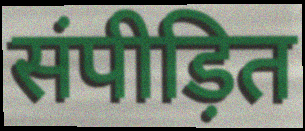
संपीड़ित